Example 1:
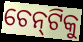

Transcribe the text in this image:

ଚେନ୍‌ଟିକୁ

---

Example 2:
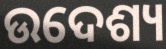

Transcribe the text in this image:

ଉଦେଶ୍ୟ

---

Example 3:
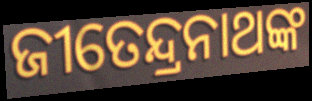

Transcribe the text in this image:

ଜୀତେନ୍ଦ୍ରନାଥଙ୍କ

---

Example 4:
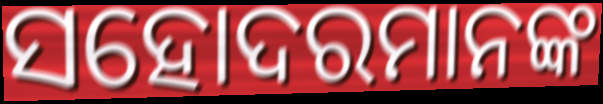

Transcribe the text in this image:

ସହୋଦରମାନଙ୍କ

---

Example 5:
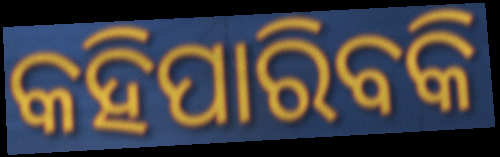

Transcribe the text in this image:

କହିପାରିବକି